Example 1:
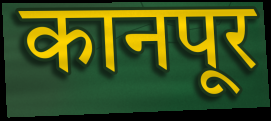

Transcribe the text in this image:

कानपूर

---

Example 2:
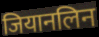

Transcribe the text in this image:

जियानलिन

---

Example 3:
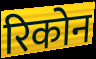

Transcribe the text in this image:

रिकोन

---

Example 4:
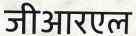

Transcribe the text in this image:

जीआरएल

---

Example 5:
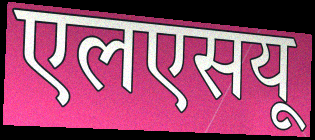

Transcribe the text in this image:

एलएसयू